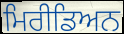
ਮਿਰੀਡਿਅਨ